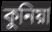
কুনিয়া